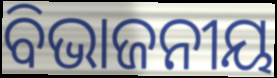
ବିଭାଜନୀୟ